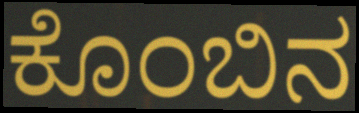
ಕೊಂಬಿನ